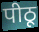
पीठू